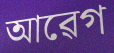
আৱেগ